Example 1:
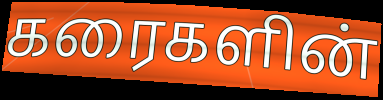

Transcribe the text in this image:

கரைகளின்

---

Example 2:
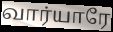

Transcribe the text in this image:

வார்யாரே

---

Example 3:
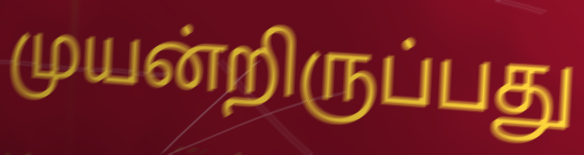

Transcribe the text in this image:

முயன்றிருப்பது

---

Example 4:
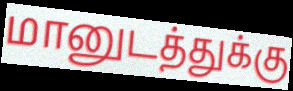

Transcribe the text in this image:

மானுடத்துக்கு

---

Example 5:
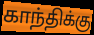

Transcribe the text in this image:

காந்திக்கு